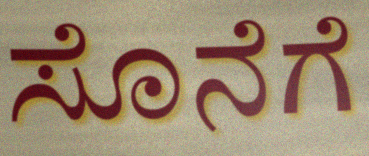
ಸೊನೆಗೆ